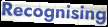
Recognising